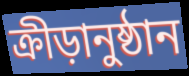
ক্ৰীড়ানুষ্ঠান